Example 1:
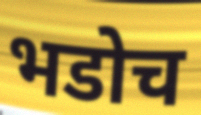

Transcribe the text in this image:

भडोच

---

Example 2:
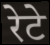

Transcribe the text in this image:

रेटे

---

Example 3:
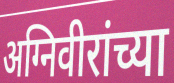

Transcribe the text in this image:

अग्निवीरांच्या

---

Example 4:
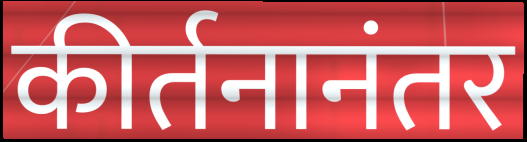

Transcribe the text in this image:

कीर्तनानंतर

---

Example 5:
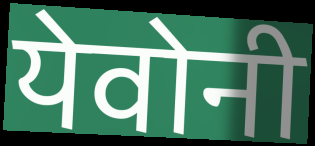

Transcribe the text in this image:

येवोनी